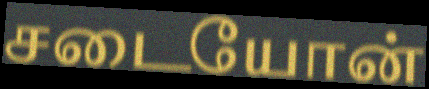
சடையோன்